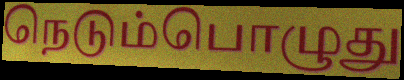
நெடும்பொழுது